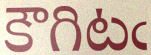
కౌగిటఁ